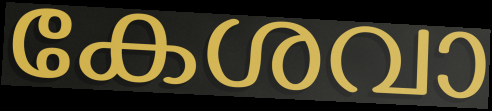
കേശവാ